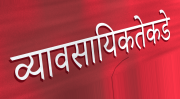
व्यावसायिकतेकडे